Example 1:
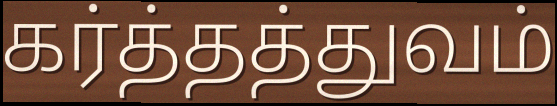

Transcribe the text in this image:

கர்த்தத்துவம்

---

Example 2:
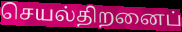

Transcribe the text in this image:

செயல்திறனைப்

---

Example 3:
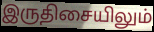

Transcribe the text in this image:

இருதிசையிலும்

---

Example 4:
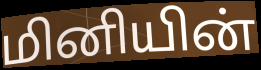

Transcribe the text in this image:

மினியின்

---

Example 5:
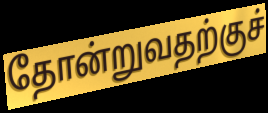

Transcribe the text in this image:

தோன்றுவதற்குச்